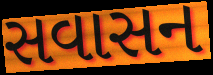
સવાસન